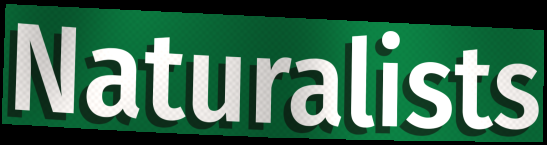
Naturalists